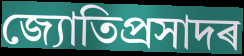
জ্যোতিপ্ৰসাদৰ